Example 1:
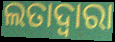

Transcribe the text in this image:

ଲତାଦ୍ୱାରା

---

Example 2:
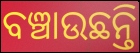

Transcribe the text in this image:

ବଞ୍ଚାଉଛନ୍ତି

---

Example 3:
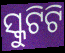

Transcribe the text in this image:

ସ୍କୁଟିଟି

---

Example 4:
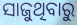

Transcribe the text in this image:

ସାଜୁଥିବାରୁ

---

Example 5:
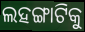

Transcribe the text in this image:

ଲହଙ୍ଗାଟିକୁ